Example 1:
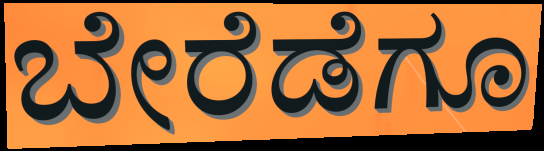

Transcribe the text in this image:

ಬೇರೆಡೆಗೂ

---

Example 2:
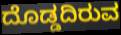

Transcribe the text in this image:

ದೊಡ್ಡದಿರುವ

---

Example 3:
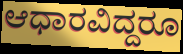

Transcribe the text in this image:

ಆಧಾರವಿದ್ದರೂ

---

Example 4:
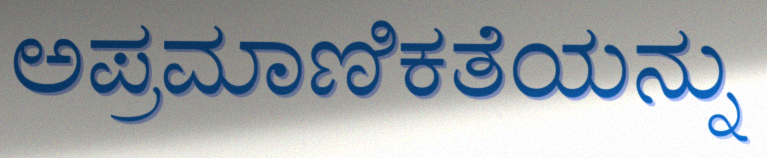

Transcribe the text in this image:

ಅಪ್ರಮಾಣಿಕತೆಯನ್ನು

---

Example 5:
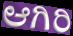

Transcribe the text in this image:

ಆಗಿರಿ